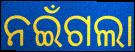
ନଇଁଗଲା